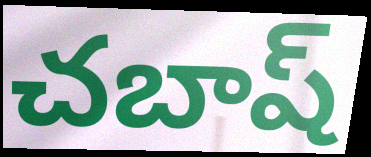
చబాష్